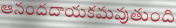
ఆనందదాయకమవుతుంది